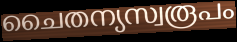
ചൈതന്യസ്വരൂപം